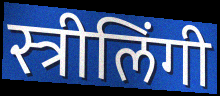
स्त्रीलिंगी